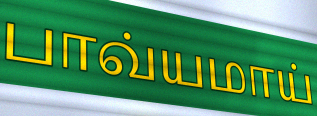
பாவ்யமாய்